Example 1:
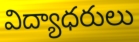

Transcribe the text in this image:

విద్యాధరులు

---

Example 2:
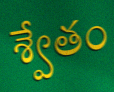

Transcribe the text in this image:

శ్వేతం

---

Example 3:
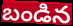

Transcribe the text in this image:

బండిన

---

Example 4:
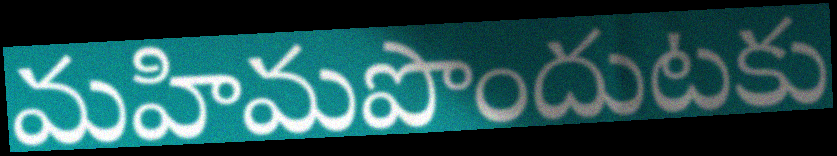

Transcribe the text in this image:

మహిమపొందుటకు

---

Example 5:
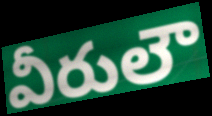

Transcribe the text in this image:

వీరులౌ